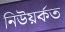
নিউয়ৰ্কত